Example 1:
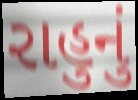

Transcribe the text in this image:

રાહુનું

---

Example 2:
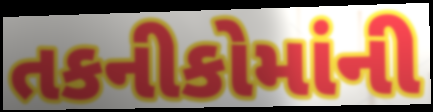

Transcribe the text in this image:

તકનીકોમાંની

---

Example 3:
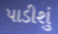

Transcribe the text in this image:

પાડીશું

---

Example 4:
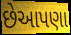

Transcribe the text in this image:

છેઆપણા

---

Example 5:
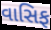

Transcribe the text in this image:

વાસિફ